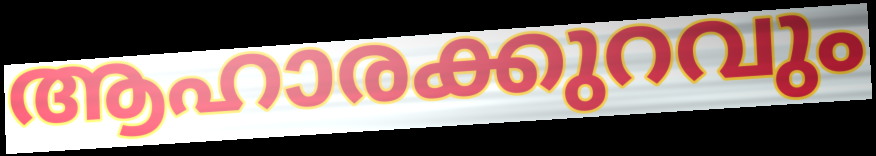
ആഹാരക്കുറവും